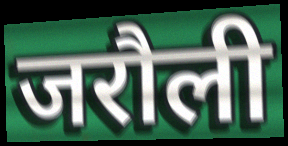
जरौली